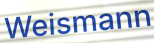
Weismann